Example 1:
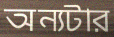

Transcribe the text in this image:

অন্যটার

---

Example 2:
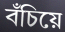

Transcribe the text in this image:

বঁচিয়ে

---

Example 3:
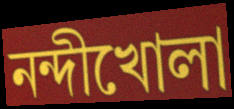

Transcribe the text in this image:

নন্দীখোলা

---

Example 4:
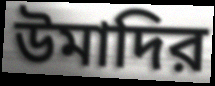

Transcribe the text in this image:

উমাদির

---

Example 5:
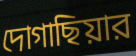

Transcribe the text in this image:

দোগাছিয়ার